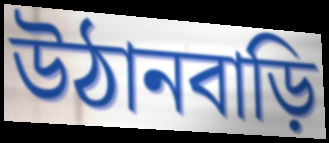
উঠানবাড়ি